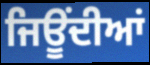
ਜਿਊਂਦੀਆਂ